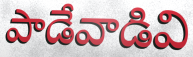
పాడేవాడివి